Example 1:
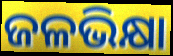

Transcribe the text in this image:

ଜଳଭିକ୍ଷା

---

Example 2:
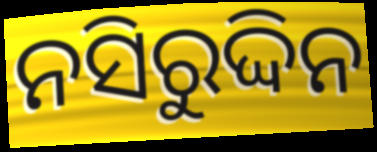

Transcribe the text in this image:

ନସିରୁଦ୍ଦିନ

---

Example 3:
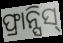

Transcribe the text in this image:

ଫ୍ରାନ୍ସିସ୍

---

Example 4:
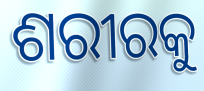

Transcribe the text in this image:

ଶରୀରକୁ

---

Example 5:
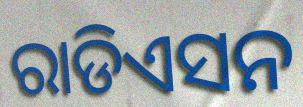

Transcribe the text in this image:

ରାଡିଏସନ